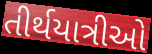
તીર્થયાત્રીઓ